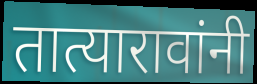
तात्यारावांनी